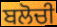
ਬਲੋਚੀ